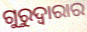
ଗୁରୁଦ୍ୱାରାର